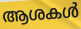
ആശകൾ